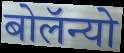
बोलॅन्यो